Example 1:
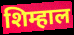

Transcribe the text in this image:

शिम्हाल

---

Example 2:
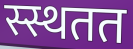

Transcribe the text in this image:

स्स्थतत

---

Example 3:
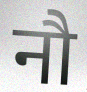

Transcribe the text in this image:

नौ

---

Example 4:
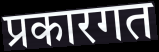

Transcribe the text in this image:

प्रकारगत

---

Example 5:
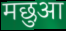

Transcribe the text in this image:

मछुआ